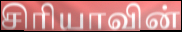
சிரியாவின்